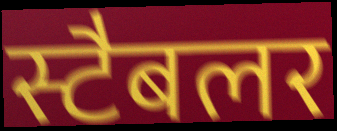
स्टैबलर